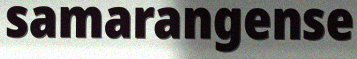
samarangense